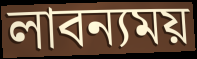
লাবন্যময়